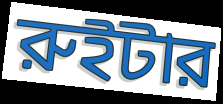
রুইটার